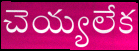
చెయ్యలేక